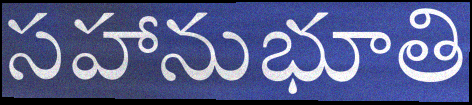
సహానుభూతి